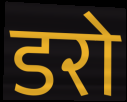
डरो